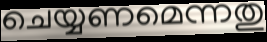
ചെയ്യണമെന്നതു